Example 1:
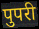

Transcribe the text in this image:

पुपरी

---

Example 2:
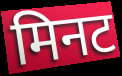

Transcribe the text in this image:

मिनट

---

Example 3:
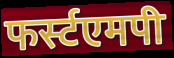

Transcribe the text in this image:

फर्स्टएमपी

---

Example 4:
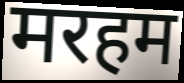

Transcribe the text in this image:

मरहम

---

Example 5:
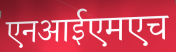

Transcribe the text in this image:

एनआईएमएच